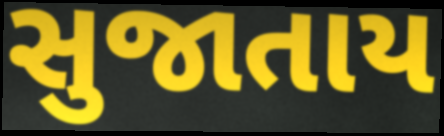
સુજાતાય